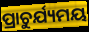
ପ୍ରାଚୁର୍ଯ୍ୟମୟ